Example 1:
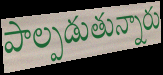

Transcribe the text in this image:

పాల్పడుతున్నారు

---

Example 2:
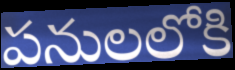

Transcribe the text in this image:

పనులలోకి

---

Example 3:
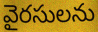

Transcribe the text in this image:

వైరసులను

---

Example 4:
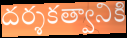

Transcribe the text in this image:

దర్శకత్వానికి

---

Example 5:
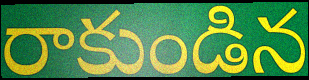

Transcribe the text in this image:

రాకుండిన